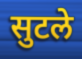
सुटले